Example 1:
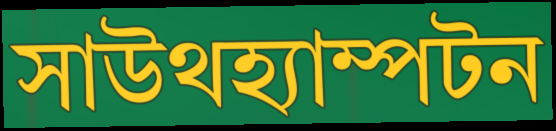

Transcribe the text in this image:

সাউথহ্যাম্পটন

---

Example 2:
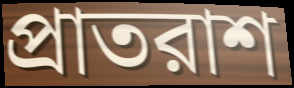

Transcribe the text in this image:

প্রাতরাশ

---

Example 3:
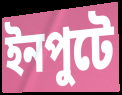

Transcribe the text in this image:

ইনপুটে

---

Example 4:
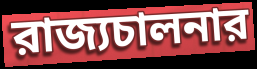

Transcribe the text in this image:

রাজ্যচালনার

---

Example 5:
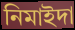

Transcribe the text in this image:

নিমাইদা